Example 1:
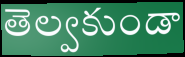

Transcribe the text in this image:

తెల్వకుండా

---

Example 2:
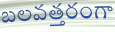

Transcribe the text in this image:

బలవత్తరంగా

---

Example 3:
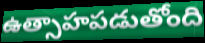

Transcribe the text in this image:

ఉత్సాహపడుతోంది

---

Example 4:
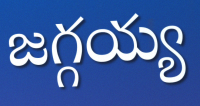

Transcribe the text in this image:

జగ్గయ్య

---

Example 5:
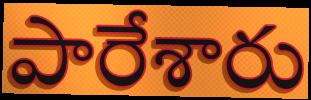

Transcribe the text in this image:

పారేశారు